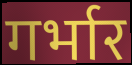
गर्भार